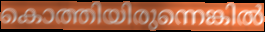
കൊത്തിയിരുന്നെങ്കിൽ